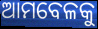
ଆମବେଳକୁ